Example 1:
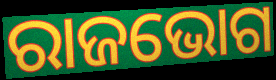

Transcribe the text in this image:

ରାଜଭୋଗ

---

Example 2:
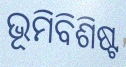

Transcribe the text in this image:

ଭୂମିବିଶିଷ୍ଟ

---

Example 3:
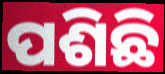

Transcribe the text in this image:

ପଶିଛି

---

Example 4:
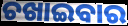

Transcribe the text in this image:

ଚଖାଇବାର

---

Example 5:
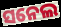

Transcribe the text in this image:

ସନେଲ